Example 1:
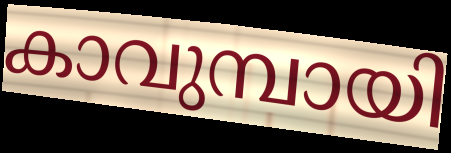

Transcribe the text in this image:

കാവുമ്പായി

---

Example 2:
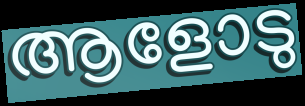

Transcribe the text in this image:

ആളോടു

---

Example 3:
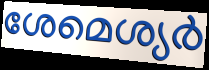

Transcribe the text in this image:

ശേമെശ്യർ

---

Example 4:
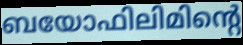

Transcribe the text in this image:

ബയോഫിലിമിന്റെ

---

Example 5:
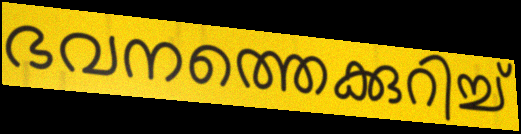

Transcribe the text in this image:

ഭവനത്തെക്കുറിച്ച്